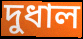
দুধাল